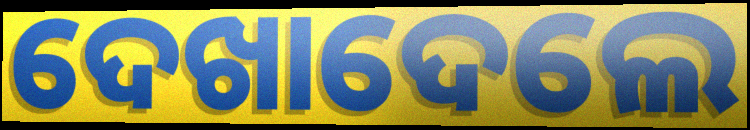
ଦେଖାଦେଲେ